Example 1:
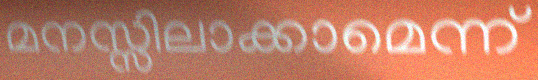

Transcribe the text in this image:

മനസ്സിലാക്കാമെന്ന്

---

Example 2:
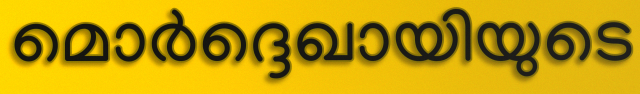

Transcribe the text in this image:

മൊർദ്ദെഖായിയുടെ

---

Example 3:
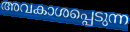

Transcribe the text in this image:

അവകാശപ്പെടുന്ന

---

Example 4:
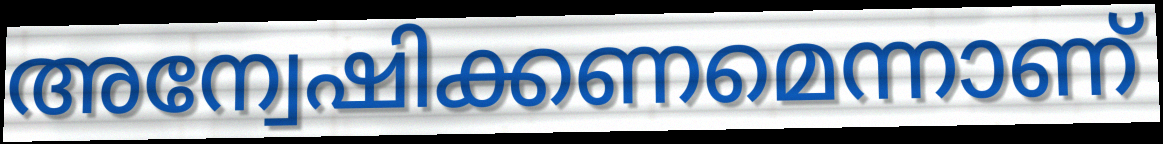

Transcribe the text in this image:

അന്വേഷിക്കണമെന്നാണ്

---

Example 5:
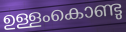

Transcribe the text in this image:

ഉള്ളംകൊണ്ടു